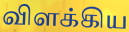
விளக்கிய